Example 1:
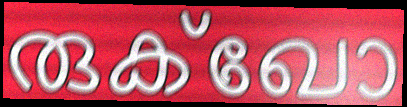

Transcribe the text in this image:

രുക്ഖോ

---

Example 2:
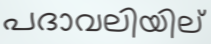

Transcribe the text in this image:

പദാവലിയില്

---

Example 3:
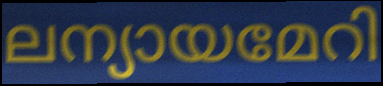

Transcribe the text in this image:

ലന്യായമേറി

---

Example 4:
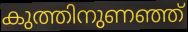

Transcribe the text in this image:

കുത്തിനുണഞ്ഞ്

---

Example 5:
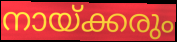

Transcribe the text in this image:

നായ്ക്കരും